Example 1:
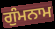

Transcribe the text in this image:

ਗੁੰਮਨਾਮ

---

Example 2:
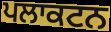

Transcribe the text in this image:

ਪਲਾਕਟਨ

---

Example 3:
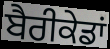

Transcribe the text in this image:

ਬੈਰੀਕੇਡਾਂ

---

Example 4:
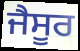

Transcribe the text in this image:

ਜੈਸੂਰ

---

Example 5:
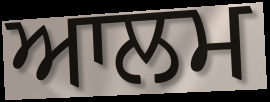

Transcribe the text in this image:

ਆਲਮ